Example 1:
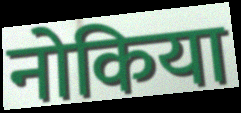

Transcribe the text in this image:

नोकिया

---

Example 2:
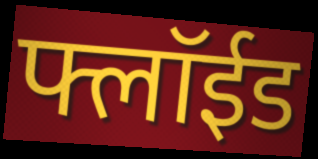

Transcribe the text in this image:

फ्लॉईड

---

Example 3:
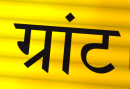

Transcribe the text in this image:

ग्रांट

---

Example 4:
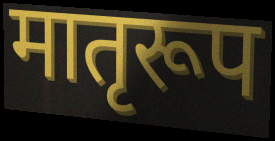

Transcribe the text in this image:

मातृरूप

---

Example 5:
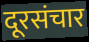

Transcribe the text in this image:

दूरसंचार